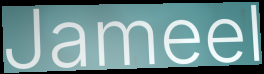
Jameel